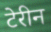
टेरीन